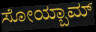
ಸೋಯ್ಬಾಮ್